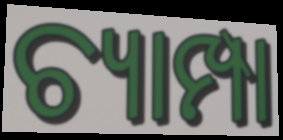
ଚ୍ୟାମ୍ପା